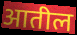
आतील